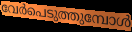
വേർപെടുത്തുമ്പോൾ